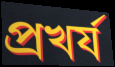
প্রখর্য